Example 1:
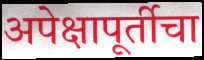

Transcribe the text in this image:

अपेक्षापूर्तीचा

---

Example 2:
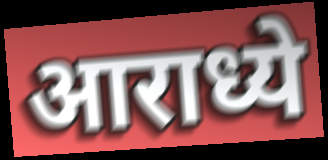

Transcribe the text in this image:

आराध्ये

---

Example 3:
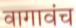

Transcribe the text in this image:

वागावंच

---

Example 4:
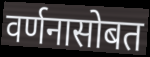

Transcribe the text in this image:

वर्णनासोबत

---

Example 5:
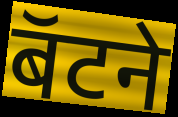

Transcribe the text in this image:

बॅटने